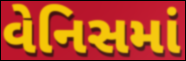
વેનિસમાં